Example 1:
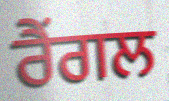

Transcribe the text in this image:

ਰੈਂਗਲ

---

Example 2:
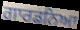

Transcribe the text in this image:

ਗਾਰਡਨਿਆ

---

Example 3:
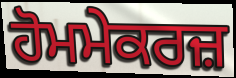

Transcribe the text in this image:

ਹੋਮਮੇਕਰਜ਼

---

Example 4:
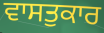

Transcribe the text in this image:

ਵਾਸਤੁਕਾਰ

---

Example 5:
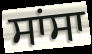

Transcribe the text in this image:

ਸਾਂਸਾ